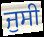
ਜੁਸੀ